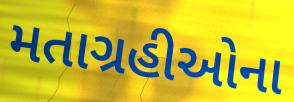
મતાગ્રહીઓના